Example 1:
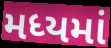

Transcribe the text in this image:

મધ્યમાં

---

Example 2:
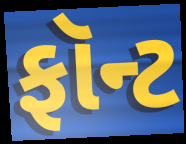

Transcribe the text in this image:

ફૉન્ટ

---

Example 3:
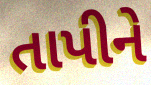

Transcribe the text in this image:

તાપીને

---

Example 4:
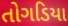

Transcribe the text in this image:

તોગડિયા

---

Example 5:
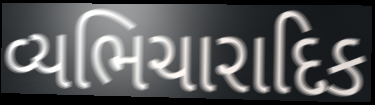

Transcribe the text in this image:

વ્યભિચારાદિક